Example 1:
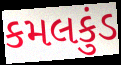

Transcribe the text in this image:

કમલકુંડ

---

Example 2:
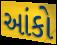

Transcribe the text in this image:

આંકો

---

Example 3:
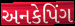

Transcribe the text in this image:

અનકેપિંગ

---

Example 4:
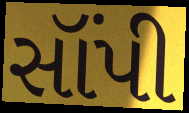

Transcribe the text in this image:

સૉંપી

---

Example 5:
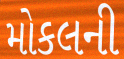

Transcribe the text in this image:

મોકલની